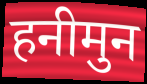
हनीमुन